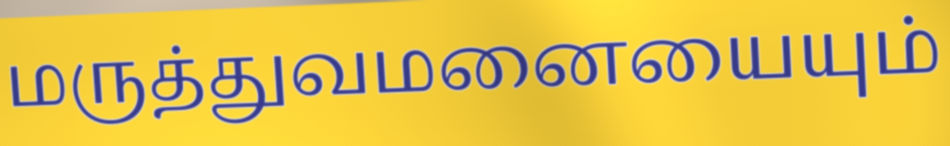
மருத்துவமனையையும்